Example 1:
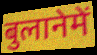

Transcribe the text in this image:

बुलानेमें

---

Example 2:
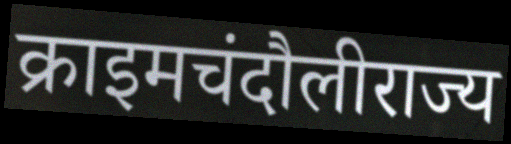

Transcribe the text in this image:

क्राइमचंदौलीराज्य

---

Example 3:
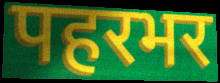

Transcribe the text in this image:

पहरभर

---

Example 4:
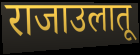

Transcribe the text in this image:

राजाउलातू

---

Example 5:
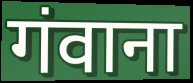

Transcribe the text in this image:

गंवाना